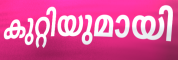
കുറ്റിയുമായി